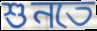
শুনতে